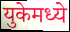
युकेमध्ये